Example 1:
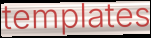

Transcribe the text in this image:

templates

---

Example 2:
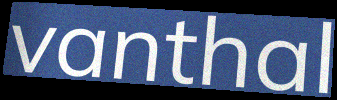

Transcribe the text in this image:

vanthal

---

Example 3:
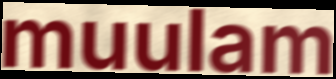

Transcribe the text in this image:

muulam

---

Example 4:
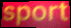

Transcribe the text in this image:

sport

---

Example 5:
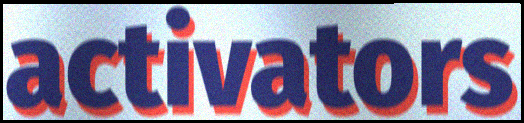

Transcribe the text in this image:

activators